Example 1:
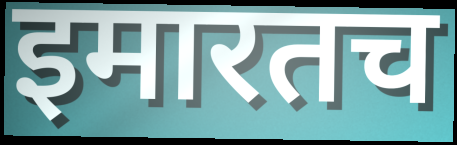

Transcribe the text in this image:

इमारतच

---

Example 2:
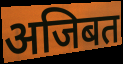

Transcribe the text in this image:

अजिबत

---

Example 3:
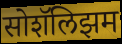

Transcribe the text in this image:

सोशॅलिझम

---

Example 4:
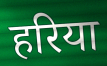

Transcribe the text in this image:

हरिया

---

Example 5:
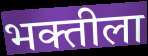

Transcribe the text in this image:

भक्तीला